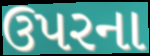
ઉપરના